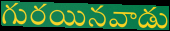
గురయినవాడు